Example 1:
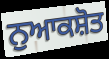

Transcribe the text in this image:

ਨੁਆਕਸ਼ੋਤ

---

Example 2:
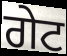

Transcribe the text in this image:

ਗੇਟ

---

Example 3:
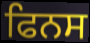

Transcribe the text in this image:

ਫਿਨਸ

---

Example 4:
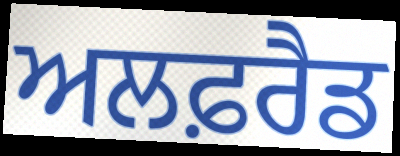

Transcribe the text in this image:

ਅਲਫ਼ਰੈਡ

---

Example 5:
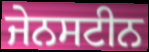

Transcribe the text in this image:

ਜੇਨਸਟੀਨ